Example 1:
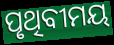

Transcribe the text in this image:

ପୃଥିବୀମୟ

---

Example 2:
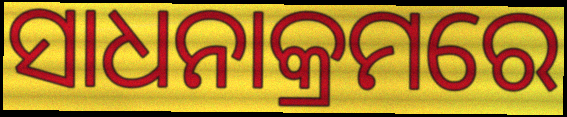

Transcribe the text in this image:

ସାଧନାକ୍ରମରେ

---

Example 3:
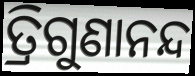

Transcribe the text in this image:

ତ୍ରିଗୁଣାନନ୍ଦ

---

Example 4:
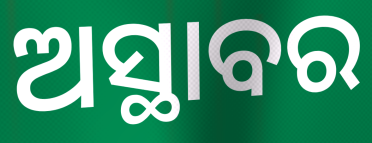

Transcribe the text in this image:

ଅସ୍ଥାବର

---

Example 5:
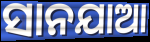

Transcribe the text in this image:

ସାନଯାଆ